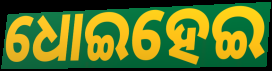
ଧୋଇହେଇ